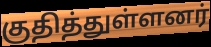
குதித்துள்ளனர்